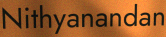
Nithyanandan